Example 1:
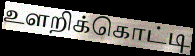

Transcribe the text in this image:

உளறிக்கொட்டி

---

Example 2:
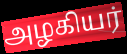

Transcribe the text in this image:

அழகியர்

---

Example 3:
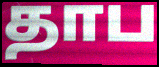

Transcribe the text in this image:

தாப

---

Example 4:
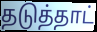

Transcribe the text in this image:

தடுத்தாட்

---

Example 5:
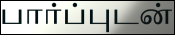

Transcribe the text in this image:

பார்ப்புடன்